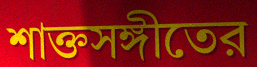
শাক্তসঙ্গীতের